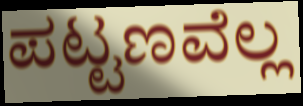
ಪಟ್ಟಣವೆಲ್ಲ